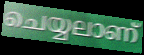
ചെയ്യലാണ്